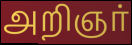
அறிஞர்